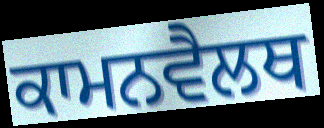
ਕਾਮਨਵੈਲਥ